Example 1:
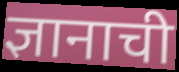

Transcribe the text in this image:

ज्ञानाची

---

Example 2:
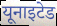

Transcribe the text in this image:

यूनाइटेड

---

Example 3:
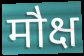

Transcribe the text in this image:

मौक्ष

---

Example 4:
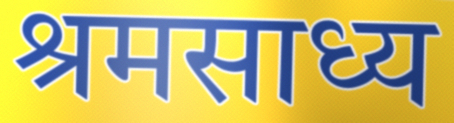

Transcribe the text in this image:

श्रमसाध्य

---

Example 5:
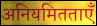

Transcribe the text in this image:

अनियमितताएँ